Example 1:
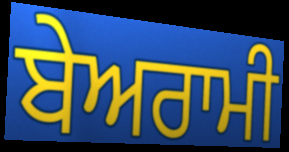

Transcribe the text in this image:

ਬੇਅਰਾਮੀ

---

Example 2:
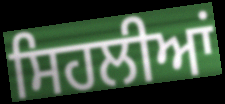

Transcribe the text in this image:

ਸਿਹਲੀਆਂ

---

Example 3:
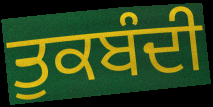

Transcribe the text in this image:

ਤੁਕਬੰਦੀ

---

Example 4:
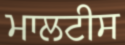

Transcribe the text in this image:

ਮਾਲਟੀਸ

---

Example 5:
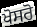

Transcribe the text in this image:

ਖੋਸਰੋ